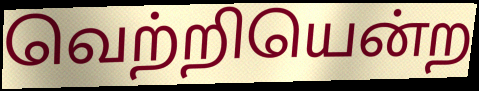
வெற்றியென்ற